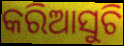
କରିଆସୁଚି